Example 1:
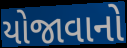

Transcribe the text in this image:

યોજાવાનો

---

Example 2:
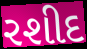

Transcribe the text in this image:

રશીદ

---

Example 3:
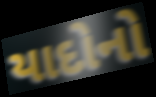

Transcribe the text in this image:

યાદોનો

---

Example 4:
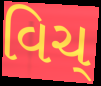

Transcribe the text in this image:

વિચ્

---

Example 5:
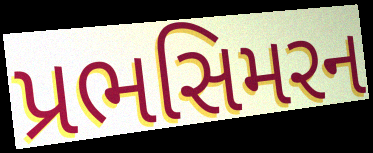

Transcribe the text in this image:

પ્રભસિમરન